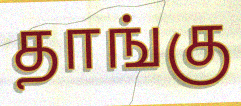
தாங்கு